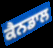
ਕੈਨਡਾਲ